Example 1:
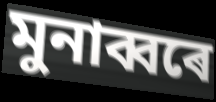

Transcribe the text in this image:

মুনাব্বৰে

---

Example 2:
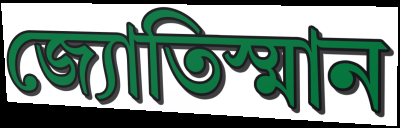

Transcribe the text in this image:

জ্যোতিস্মান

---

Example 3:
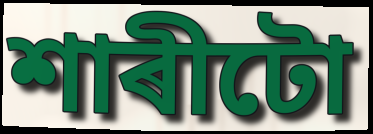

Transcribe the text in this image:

শাৰীটো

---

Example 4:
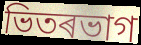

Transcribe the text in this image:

ভিতৰভাগ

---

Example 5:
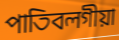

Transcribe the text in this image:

পাতিবলগীয়া